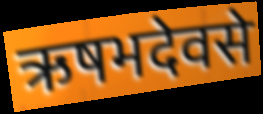
ऋषभदेवसे